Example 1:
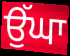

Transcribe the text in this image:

ਉੱਘਾ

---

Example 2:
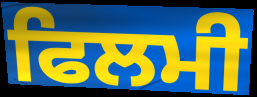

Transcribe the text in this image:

ਫਿਲਮੀ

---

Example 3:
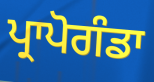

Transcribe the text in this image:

ਪ੍ਰਾਪੋਗੰਡਾ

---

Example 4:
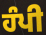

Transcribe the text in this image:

ਹੰਪੀ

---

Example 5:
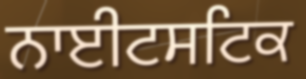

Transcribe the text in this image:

ਨਾਈਟਸਟਿਕ